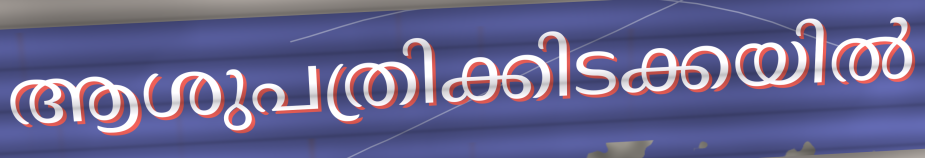
ആശുപത്രിക്കിടക്കയിൽ